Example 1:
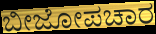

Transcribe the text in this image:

ಬೀಜೋಪಚಾರ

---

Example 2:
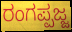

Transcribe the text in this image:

ರಂಗಪ್ಪಜ್ಜ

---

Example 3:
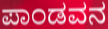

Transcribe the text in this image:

ಪಾಂಡವನ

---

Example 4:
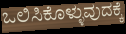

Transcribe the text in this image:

ಒಲಿಸಿಕೊಳ್ಳುವುದಕ್ಕೆ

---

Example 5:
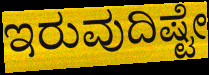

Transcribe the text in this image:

ಇರುವುದಿಷ್ಟೇ